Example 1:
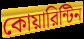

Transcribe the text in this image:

কোয়ারিন্টিন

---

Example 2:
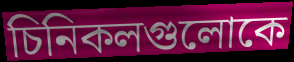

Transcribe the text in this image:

চিনিকলগুলোকে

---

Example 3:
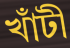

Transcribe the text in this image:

খাঁটী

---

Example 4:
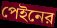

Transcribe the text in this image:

পেইনের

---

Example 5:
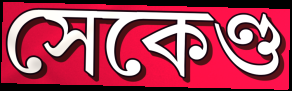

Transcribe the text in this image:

সেকেণ্ড